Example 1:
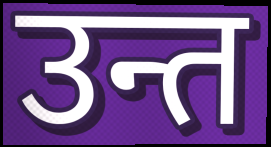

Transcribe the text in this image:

उन्त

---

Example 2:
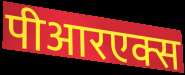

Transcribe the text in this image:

पीआरएक्स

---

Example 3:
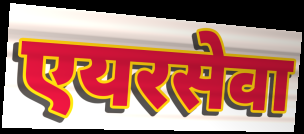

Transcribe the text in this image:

एयरसेवा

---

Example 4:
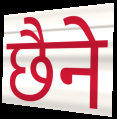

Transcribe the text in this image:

छैने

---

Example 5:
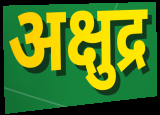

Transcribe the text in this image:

अक्षुद्र